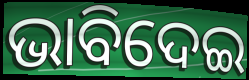
ଭାବିଦେଇ